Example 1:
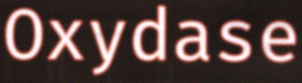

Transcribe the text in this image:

Oxydase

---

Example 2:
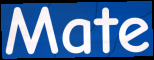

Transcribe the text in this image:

Mate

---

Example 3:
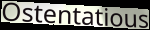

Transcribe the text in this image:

Ostentatious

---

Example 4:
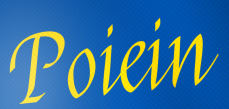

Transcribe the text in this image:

Poiein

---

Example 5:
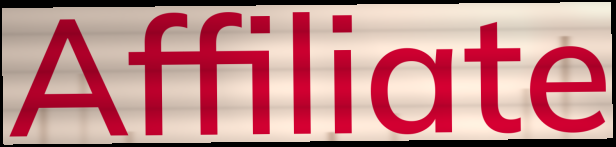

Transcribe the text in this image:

Affiliate